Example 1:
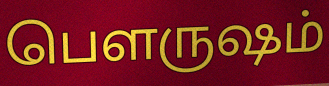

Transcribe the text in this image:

பௌருஷம்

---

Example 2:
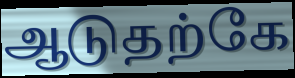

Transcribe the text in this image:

ஆடுதற்கே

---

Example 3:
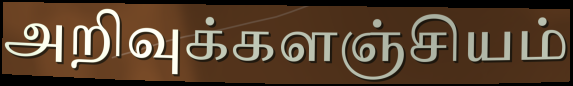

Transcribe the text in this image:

அறிவுக்களஞ்சியம்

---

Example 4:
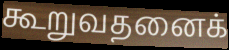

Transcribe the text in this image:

கூறுவதனைக்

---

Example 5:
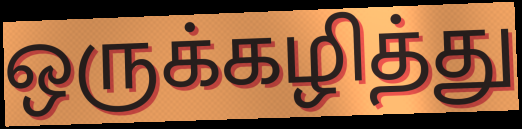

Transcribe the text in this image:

ஒருக்கழித்து